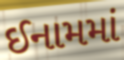
ઈનામમાં